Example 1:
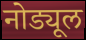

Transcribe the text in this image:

नोड्यूल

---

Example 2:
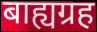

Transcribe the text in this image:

बाह्यग्रह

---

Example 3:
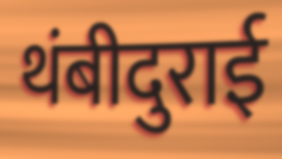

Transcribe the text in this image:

थंबीदुराई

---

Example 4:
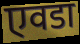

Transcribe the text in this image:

एवडा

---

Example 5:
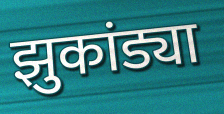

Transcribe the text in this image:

झुकांड्या